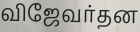
விஜேவர்தன